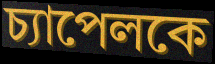
চ্যাপেলকে